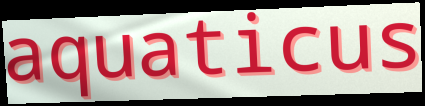
aquaticus